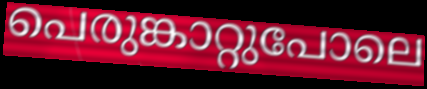
പെരുങ്കാറ്റുപോലെ